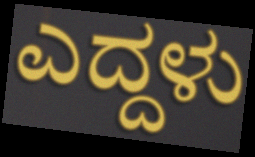
ಎದ್ದಳು